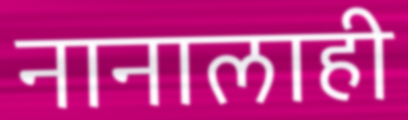
नानालाही